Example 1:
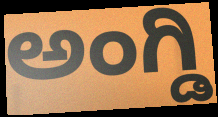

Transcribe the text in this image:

ಅಂಗ್ಡಿ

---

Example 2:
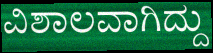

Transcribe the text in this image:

ವಿಶಾಲವಾಗಿದ್ದು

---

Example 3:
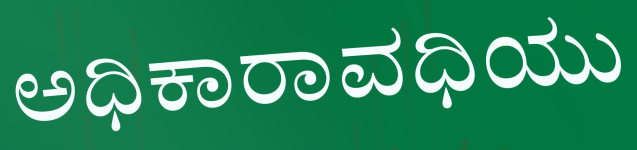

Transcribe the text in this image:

ಅಧಿಕಾರಾವಧಿಯು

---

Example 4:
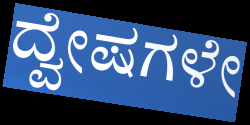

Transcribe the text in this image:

ದ್ವೇಷಗಳೇ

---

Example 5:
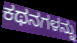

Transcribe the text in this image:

ಕಥನಗಳನ್ನು